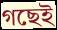
গছেই